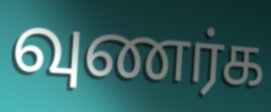
வுணர்க